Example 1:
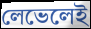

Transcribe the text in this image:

লেভেলেই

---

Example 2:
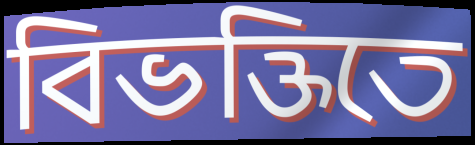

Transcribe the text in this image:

বিভক্তিতে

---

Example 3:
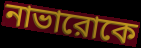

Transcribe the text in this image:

নাভারোকে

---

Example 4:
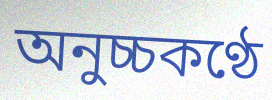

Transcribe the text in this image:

অনুচ্চকণ্ঠে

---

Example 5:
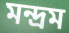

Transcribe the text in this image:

মন্দ্রম